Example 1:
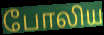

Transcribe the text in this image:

போலிய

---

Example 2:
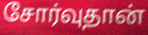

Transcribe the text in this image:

சோர்வுதான்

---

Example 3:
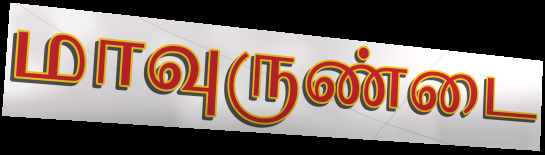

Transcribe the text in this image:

மாவுருண்டை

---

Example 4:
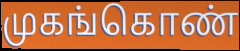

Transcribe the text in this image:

முகங்கொண்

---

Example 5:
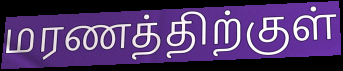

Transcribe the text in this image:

மரணத்திற்குள்